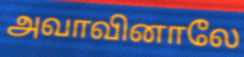
அவாவினாலே